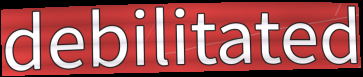
debilitated